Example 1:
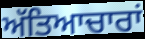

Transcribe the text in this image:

ਅੱਤਿਆਚਾਰਾਂ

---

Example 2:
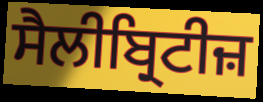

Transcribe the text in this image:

ਸੈਲੀਬ੍ਰਿਟੀਜ਼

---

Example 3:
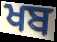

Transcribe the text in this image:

ਖਬ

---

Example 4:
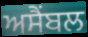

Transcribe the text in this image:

ਅਸੈਂਬਲ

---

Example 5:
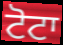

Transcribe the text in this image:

ਟੋਟਾ